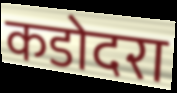
कडोदरा